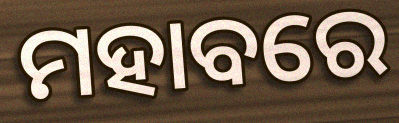
ମହାବରେ